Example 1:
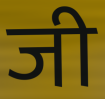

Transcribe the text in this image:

जी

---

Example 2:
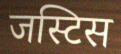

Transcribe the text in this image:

जस्टिस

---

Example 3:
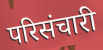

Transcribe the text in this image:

परिसंचारी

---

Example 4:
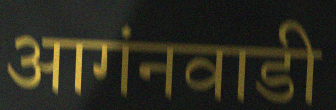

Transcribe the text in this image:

आगंनवाडी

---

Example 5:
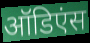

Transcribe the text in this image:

ऑडिएंस